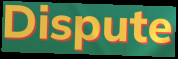
Dispute